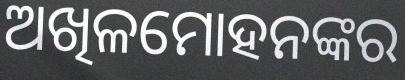
ଅଖିଳମୋହନଙ୍କର